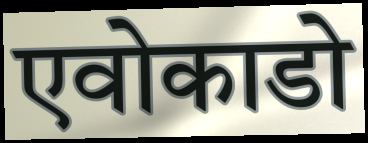
एवोकाडो